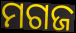
ମଗଜ